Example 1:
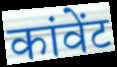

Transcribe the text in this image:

कांवेंट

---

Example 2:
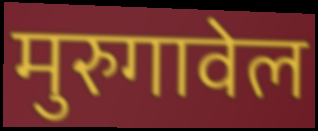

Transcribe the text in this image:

मुरुगावेल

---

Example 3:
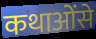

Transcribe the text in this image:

कथाओंसे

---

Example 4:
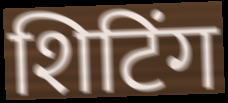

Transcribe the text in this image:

शिटिंग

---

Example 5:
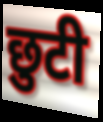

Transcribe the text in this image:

छुटी